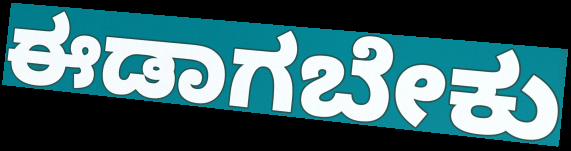
ಈಡಾಗಬೇಕು